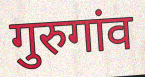
गुरुगांव